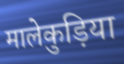
मालेकुड़िया